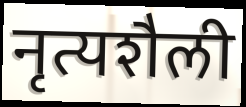
नृत्यशैली